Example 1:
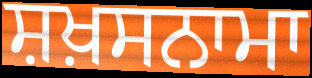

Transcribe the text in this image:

ਸ਼ਖ਼ਸਨਾਮਾ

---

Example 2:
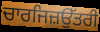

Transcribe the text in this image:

ਚਾਰਜਿਜ਼ਉੱਤਰੀ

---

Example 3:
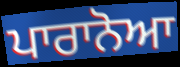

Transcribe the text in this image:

ਪਾਰਾਨੋਆ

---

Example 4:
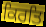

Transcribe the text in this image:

ਕਿਰਤਿ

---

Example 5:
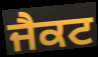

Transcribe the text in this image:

ਜੈਕਟ